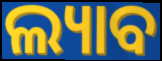
ଲ୍ୟାବ